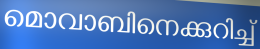
മൊവാബിനെക്കുറിച്ച്